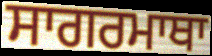
ਸਾਗਰਮਾਥਾ